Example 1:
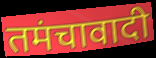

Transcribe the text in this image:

तमंचावादी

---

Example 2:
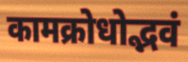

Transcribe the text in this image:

कामक्रोधोद्भवं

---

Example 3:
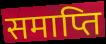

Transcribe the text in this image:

समाप्ति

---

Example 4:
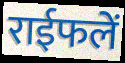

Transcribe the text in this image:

राईफलें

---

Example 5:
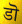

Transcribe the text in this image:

डॊ